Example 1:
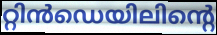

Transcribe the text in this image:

റ്റിൻഡെയിലിന്റെ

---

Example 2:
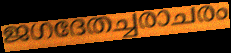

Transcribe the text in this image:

ജഗദേതച്ചരാചരം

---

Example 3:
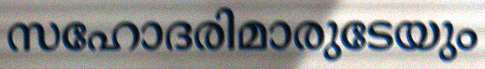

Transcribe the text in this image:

സഹോദരിമാരുടേയും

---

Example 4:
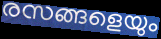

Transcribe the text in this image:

രസങ്ങളെയും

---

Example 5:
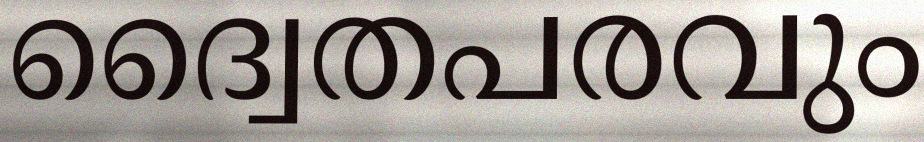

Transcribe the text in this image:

ദ്വൈതപരവും